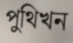
পুথিখন